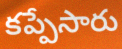
కప్పేసారు